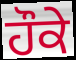
ਹੌਕੇ